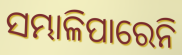
ସମ୍ଭାଳିପାରେନି